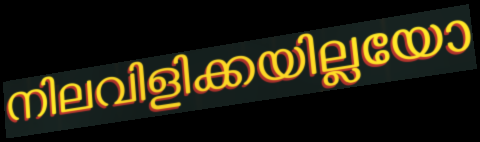
നിലവിളിക്കയില്ലയോ